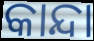
କାନ୍ଦା